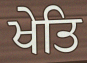
ਖੇਤਿ